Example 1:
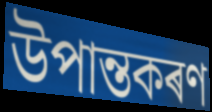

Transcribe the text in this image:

উপান্তকৰণ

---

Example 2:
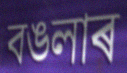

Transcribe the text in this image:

বঙলাৰ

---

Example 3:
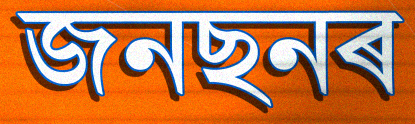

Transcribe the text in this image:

জনছনৰ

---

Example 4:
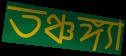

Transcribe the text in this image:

তঞ্চঙ্গ্যা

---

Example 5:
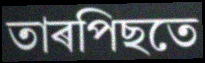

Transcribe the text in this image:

তাৰপিছতে